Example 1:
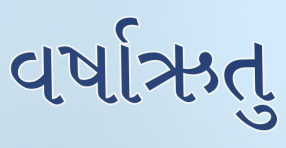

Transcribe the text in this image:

વર્ષાઋતુ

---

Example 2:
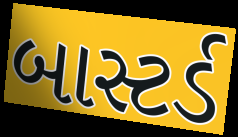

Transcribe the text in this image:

બાસ્ટર્ડ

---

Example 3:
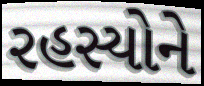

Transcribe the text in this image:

રહસ્યોને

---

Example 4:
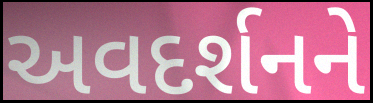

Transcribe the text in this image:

અવદર્શનને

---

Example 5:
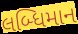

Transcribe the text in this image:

લબ્ધિમાન